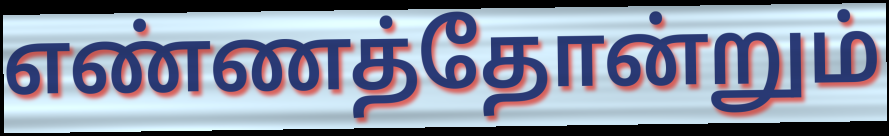
எண்ணத்தோன்றும்